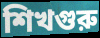
শিখগুরু